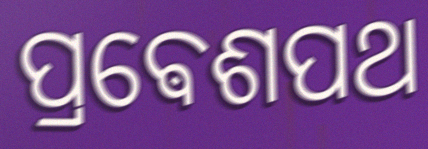
ପ୍ରଵେଶପଥ